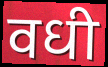
वधी